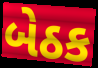
બેઠક